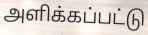
அளிக்கப்பட்டு